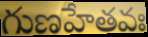
గుణహేతవః